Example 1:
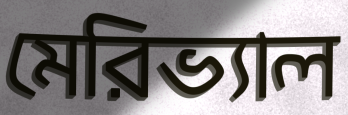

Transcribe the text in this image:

মেরিভ্যাল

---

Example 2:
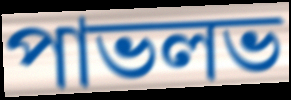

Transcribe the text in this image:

পাভলভ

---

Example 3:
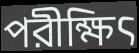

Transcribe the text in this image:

পরীক্ষিৎ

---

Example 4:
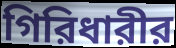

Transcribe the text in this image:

গিরিধারীর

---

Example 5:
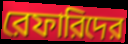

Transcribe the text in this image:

রেফারিদের